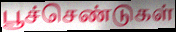
பூச்செண்டுகள்